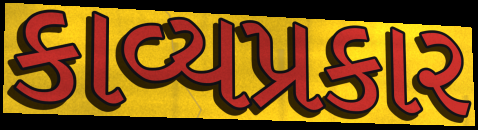
કાવ્યપ્રકાર